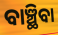
ବାଞ୍ଛିବା